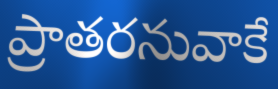
ప్రాతరనువాకే